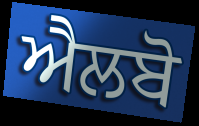
ਐਲਬੋ